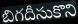
బిగదీసుకొని